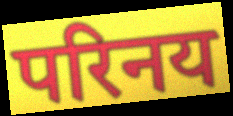
परिनय